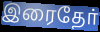
இரைதேர்